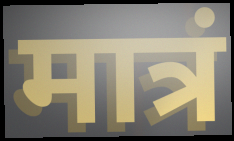
मात्रं